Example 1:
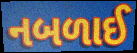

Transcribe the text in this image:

નબળાઈ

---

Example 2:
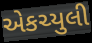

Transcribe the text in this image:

એકચ્યુલી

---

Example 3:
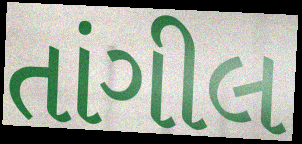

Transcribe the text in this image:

તાંગીલ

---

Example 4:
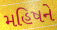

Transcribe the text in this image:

મહિષને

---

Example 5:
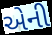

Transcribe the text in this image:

એની